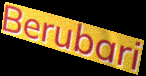
Berubari